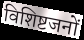
विशिष्टजनों